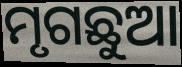
ମୃଗଛୁଆ